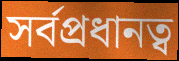
সর্বপ্রধানত্ব